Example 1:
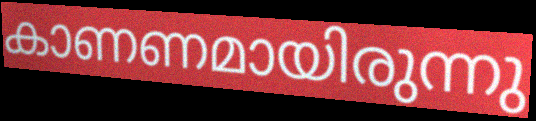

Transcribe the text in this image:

കാണണമായിരുന്നു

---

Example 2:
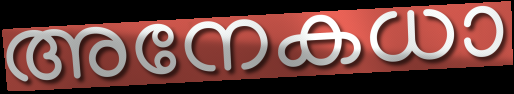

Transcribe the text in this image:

അനേകധാ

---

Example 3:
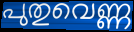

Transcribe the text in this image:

പുതുവെണ്ണ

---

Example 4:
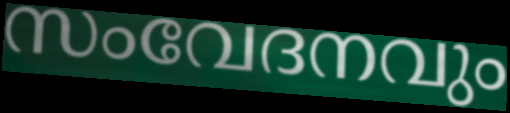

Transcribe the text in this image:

സംവേദനവും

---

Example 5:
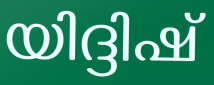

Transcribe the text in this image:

യിദ്ദിഷ്